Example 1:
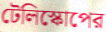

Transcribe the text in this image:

টেলিস্কোপের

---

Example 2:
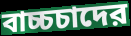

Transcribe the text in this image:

বাচ্চচাদের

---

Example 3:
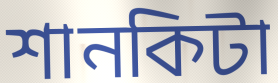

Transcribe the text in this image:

শানকিটা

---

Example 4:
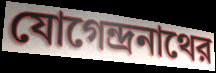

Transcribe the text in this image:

যোগেন্দ্রনাথের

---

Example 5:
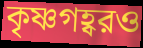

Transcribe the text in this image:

কৃষ্ণগহ্বরও